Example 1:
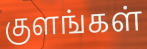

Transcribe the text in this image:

குளங்கள்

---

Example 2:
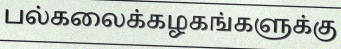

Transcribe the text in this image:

பல்கலைக்கழகங்களுக்கு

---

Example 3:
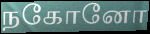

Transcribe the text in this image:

நகோனோ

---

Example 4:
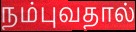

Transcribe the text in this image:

நம்புவதால்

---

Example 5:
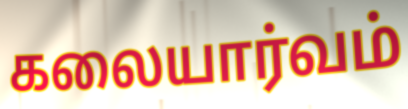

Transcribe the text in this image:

கலையார்வம்